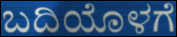
ಬದಿಯೊಳಗೆ